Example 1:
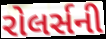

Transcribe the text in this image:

રોલર્સની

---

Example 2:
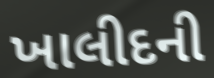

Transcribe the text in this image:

ખાલીદની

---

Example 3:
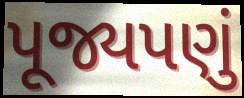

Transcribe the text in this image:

પૂજ્યપણું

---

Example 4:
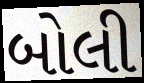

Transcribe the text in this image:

બોલી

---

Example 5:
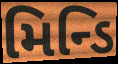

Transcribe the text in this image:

મિન્ડિ